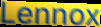
Lennox